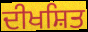
ਦੀਖਸ਼ਿਤ